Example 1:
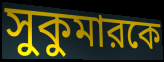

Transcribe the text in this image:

সুকুমারকে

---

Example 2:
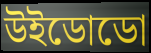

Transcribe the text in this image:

উইডোডো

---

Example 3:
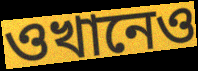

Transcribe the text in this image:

ওখানেও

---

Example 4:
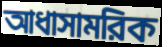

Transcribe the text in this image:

আধাসামরিক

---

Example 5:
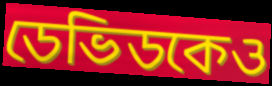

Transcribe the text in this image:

ডেভিডকেও